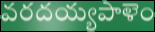
వరదయ్యపాళెం